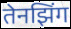
तेनझिंग